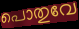
പൊതുവേ